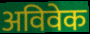
अविवेक